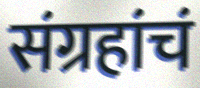
संग्रहांचं